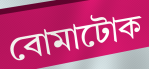
বোমাটোক